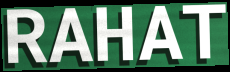
RAHAT